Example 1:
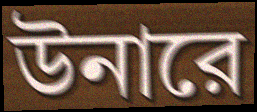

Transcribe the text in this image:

উনারে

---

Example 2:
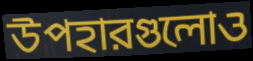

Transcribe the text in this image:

উপহারগুলোও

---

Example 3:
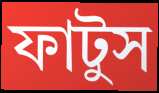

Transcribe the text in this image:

ফাটুস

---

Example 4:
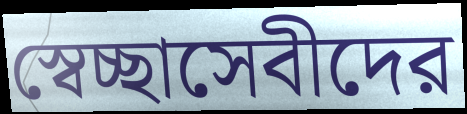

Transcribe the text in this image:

স্বেচ্ছাসেবীদের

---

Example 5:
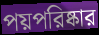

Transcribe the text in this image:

পয়পরিষ্কার